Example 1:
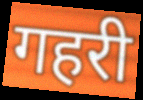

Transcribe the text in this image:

गहरी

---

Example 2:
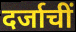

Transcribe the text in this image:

दर्जाचीं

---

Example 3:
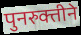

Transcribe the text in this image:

पुनरुक्तीने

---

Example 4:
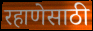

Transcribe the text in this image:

रहाणेसाठी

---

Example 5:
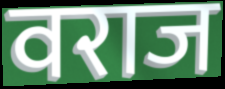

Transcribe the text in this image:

वराज